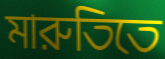
মারুতিতে